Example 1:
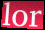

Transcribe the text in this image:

lor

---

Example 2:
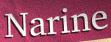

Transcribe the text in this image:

Narine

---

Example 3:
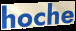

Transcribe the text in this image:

hoche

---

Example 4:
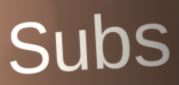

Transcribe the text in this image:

Subs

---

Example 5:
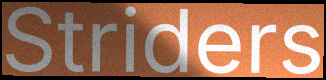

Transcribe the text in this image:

Striders